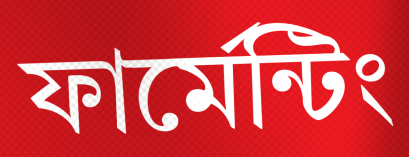
ফার্মেন্টিং